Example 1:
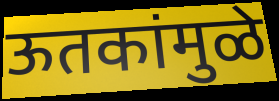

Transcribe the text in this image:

ऊतकांमुळे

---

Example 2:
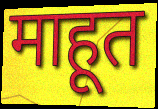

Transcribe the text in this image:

माहूत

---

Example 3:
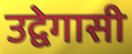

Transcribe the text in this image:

उद्वेगासी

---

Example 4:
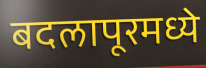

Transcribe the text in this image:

बदलापूरमध्ये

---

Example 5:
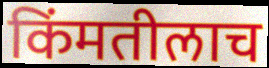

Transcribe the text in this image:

किंमतीलाच